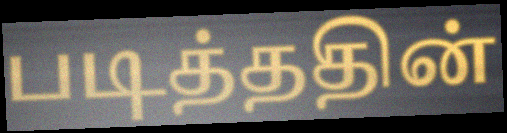
படித்ததின்